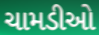
ચામડીઓ